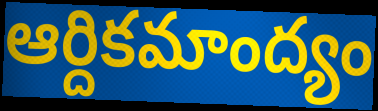
ఆర్దికమాంద్యం